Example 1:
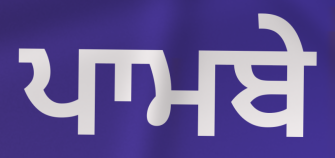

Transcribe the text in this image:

ਪਾਮਬੇ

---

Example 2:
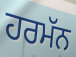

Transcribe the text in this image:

ਹਰਮੱਨ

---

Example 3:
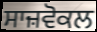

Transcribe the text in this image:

ਸਾਜ਼ਵੋਕਲ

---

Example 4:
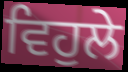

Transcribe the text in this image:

ਵਿਹੁਲੇ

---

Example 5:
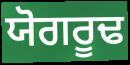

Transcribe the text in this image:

ਯੋਗਰੂਢ